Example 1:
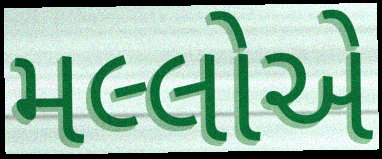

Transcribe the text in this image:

મલ્લોએ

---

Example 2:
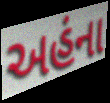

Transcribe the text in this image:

અહંના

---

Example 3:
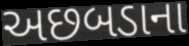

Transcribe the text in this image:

અછબડાના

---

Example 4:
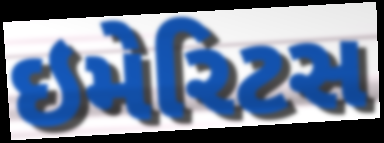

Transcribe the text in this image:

ઇમેરિટસ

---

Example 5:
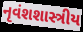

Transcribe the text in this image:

નૃવંશશાસ્ત્રીય